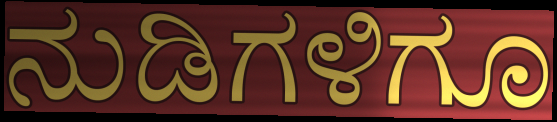
ನುಡಿಗಳಿಗೂ